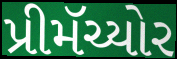
પ્રીમૅચ્યોર